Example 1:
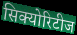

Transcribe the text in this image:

सिक्योरिटीज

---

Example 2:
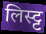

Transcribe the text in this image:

लिस्ट्ट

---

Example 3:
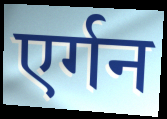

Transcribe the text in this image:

एर्गन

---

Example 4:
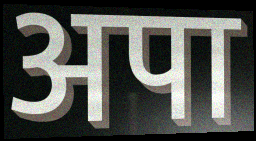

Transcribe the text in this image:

अपा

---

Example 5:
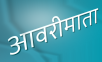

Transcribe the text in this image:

आवरीमाता